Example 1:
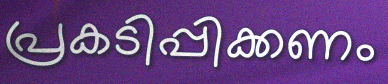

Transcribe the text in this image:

പ്രകടിപ്പിക്കണം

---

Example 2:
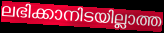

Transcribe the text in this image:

ലഭിക്കാനിടയില്ലാത്ത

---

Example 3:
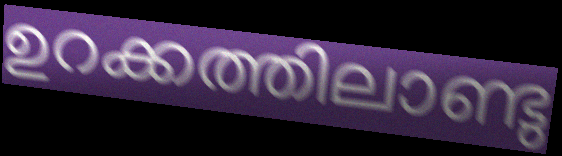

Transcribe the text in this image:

ഉറക്കത്തിലാണ്ടു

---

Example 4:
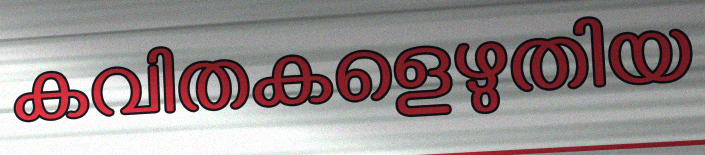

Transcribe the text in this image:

കവിതകളെഴുതിയ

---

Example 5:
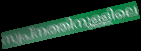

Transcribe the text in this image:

സ്വപ്നത്തിനുള്ളിലെ